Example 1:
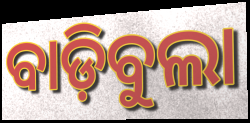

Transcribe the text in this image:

ବାଡ଼ିବୁଲା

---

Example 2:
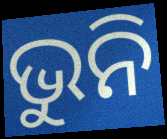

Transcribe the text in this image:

ଭୁନି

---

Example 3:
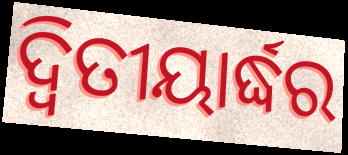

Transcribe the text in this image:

ଦ୍ୱିତୀୟାର୍ଦ୍ଧର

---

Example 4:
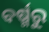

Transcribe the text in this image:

ବର୍ଷ୍ମରୁ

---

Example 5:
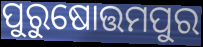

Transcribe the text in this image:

ପୁରୁଷୋତ୍ତମପୁର